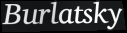
Burlatsky